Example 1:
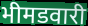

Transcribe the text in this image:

भीमडवारी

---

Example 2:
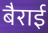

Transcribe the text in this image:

बैराई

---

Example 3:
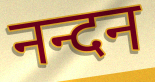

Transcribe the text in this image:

नन्‍दन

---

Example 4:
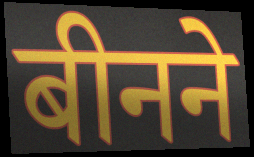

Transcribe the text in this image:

बीनने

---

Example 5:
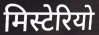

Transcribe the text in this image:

मिस्टेरियो